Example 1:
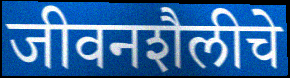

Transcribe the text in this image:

जीवनशैलीचे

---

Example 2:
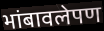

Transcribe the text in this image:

भांबावलेपण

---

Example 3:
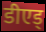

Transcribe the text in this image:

डीएड्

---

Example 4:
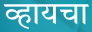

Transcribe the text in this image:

व्हायचा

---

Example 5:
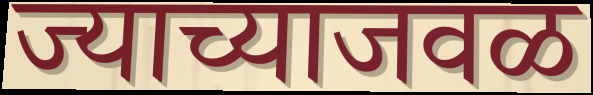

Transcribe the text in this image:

ज्याच्याजवळ